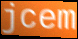
jcem